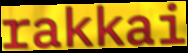
rakkai